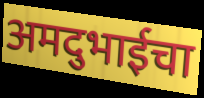
अमदुभाईचा